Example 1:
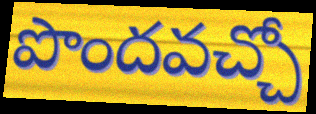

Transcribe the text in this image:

పొందవచ్చో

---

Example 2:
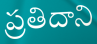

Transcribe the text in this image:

ప్రతిదాని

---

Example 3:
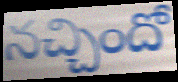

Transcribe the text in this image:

నచ్చిందో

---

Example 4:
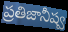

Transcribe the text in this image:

ప్రతిజానీష్వ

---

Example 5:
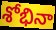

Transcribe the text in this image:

శోభినా